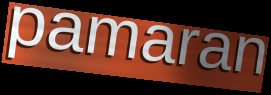
pamaran